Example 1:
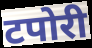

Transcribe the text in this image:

टपोरी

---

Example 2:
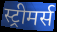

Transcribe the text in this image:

स्ट्रीमर्स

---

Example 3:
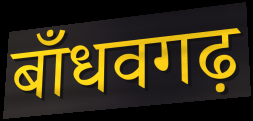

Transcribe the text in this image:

बाँधवगढ़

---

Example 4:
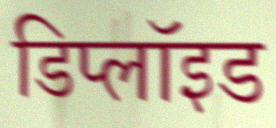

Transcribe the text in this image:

डिप्लॉइड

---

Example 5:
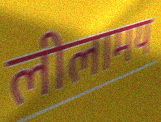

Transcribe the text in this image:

लीलामय